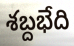
శబ్దభేది